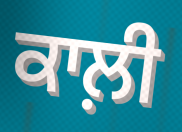
ਕਾਲ਼ੀ